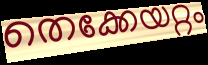
തെക്കേയറ്റം